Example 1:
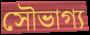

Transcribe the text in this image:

সৌভাগ্য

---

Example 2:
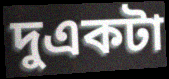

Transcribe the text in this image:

দুএকটা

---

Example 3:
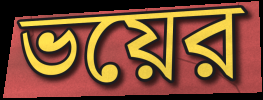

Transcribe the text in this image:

ভয়ের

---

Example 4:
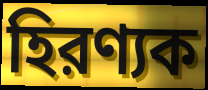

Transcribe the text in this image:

হিরণ্যক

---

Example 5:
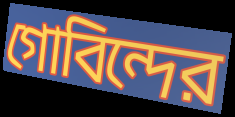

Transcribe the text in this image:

গোবিন্দের